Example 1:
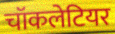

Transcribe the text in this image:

चॉकलेटियर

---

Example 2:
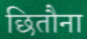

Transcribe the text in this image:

छितौना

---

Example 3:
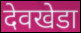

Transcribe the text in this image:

देवखेडा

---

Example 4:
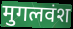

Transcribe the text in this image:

मुगलवंश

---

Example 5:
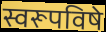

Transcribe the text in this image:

स्वरूपविषे